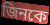
জিনকে